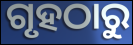
ଗୃହଠାରୁ